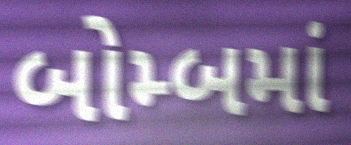
બોમ્બમાં